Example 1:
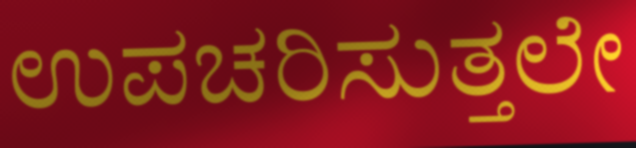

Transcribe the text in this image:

ಉಪಚರಿಸುತ್ತಲೇ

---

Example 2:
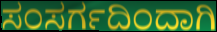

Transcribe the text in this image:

ಸಂಸರ್ಗದಿಂದಾಗಿ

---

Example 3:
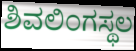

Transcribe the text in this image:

ಶಿವಲಿಂಗಸ್ಥಲ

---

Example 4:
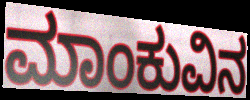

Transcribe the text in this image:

ಮಾಂಕುವಿನ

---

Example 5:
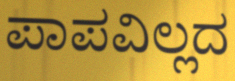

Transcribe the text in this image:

ಪಾಪವಿಲ್ಲದ